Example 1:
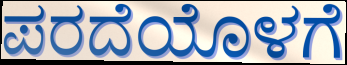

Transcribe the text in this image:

ಪರದೆಯೊಳಗೆ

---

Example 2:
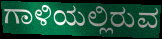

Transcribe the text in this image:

ಗಾಳಿಯಲ್ಲಿರುವ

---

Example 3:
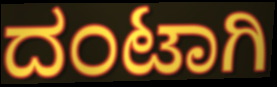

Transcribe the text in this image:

ದಂಟಾಗಿ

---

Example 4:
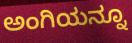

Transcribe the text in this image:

ಅಂಗಿಯನ್ನೂ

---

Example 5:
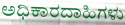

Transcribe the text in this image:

ಅಧಿಕಾರದಾಹಿಗಳು